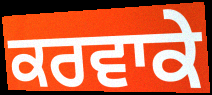
ਕਰਵਾਕੇ